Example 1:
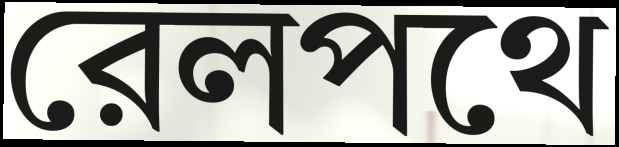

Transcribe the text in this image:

রেলপথে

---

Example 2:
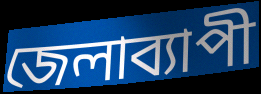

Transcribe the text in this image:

জেলাব্যাপী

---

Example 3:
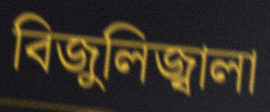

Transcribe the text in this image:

বিজুলিজ্বালা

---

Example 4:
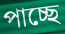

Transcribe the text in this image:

পাচ্ছে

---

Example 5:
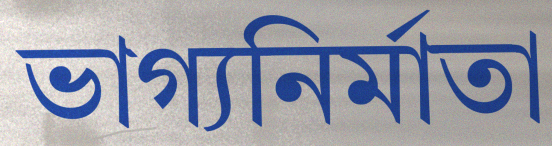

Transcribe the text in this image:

ভাগ্যনির্মাতা